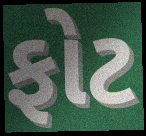
ફોટ